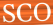
SCO